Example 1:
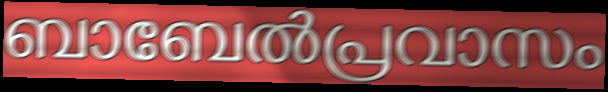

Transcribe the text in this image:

ബാബേൽപ്രവാസം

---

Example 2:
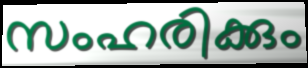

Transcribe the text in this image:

സംഹരിക്കും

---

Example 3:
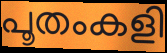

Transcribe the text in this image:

പൂതംകളി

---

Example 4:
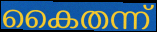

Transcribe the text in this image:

കൈതന്ന്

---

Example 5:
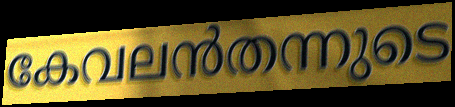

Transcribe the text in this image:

കേവലൻതന്നുടെ